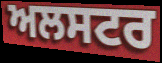
ਅਲਸਟਰ